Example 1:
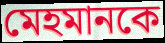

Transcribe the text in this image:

মেহমানকে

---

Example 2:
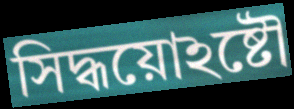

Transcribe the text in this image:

সিদ্ধয়োঽষ্টৌ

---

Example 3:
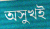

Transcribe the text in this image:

অসুখই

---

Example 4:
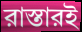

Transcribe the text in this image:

রাস্তারই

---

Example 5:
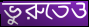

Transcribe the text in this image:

ভুরুতেও